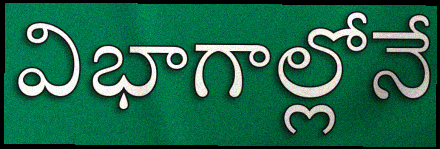
విభాగాల్లోనే